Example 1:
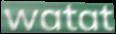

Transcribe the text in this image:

watat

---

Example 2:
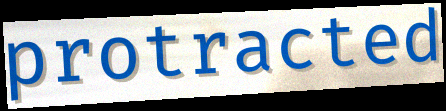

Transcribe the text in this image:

protracted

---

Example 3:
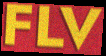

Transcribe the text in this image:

FLV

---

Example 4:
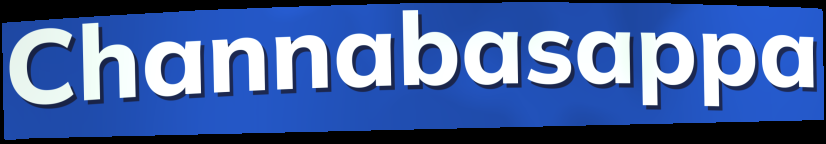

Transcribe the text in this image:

Channabasappa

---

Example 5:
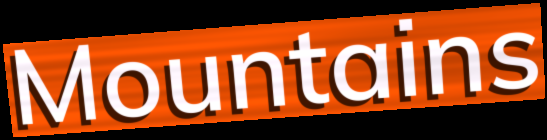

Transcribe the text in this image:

Mountains